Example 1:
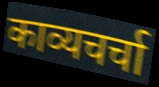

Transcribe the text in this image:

काव्यचर्चा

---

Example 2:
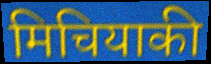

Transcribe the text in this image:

मिचियाकी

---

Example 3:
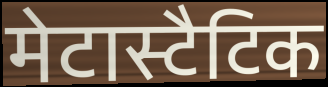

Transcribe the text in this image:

मेटास्टैटिक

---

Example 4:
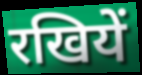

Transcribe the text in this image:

रखियें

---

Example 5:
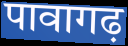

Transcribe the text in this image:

पावागढ़